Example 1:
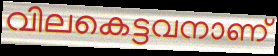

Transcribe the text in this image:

വിലകെട്ടവനാണ്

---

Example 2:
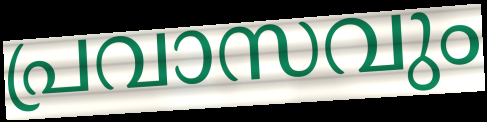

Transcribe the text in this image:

പ്രവാസവും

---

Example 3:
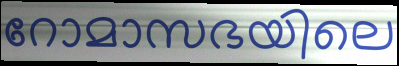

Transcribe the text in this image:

റോമാസഭയിലെ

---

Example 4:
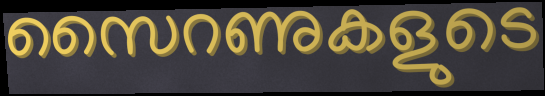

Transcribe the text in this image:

സൈറണുകളുടെ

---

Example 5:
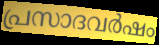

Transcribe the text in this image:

പ്രസാദവർഷം